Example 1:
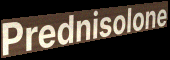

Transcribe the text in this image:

Prednisolone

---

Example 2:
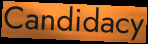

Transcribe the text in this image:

Candidacy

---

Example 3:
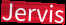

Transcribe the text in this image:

Jervis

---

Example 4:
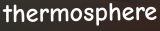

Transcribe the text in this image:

thermosphere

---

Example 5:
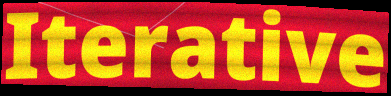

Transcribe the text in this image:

Iterative